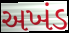
અખંડ